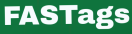
FASTags